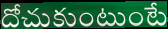
దోచుకుంటుంటే